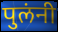
पुलंनी